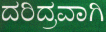
ದರಿದ್ರವಾಗಿ